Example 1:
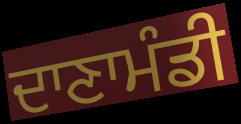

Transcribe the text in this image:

ਦਾਣਾਮੰਡੀ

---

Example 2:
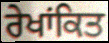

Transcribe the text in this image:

ਰੇਖਾਂਕਿਤ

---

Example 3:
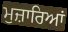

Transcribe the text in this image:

ਮੁਜ਼ਾਰਿਆਂ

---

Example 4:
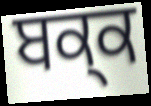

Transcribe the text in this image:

ਬਕ੍ਕ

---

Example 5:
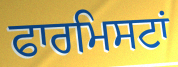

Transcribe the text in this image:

ਫਾਰਮਿਸਟਾਂ